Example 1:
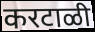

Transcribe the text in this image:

करटाळी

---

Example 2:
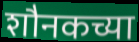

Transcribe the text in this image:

शौनकच्या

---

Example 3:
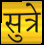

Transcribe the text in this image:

सुत्रे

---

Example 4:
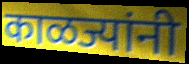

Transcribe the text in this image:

काळज्यांनी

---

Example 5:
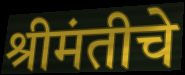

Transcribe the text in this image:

श्रीमंतीचे